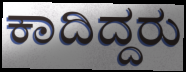
ಕಾದಿದ್ದರು